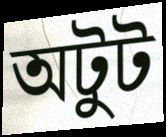
অটুট